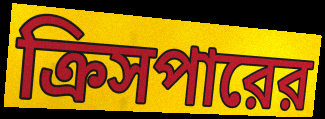
ক্রিসপারের